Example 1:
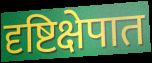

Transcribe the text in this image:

दृष्टिक्षेपात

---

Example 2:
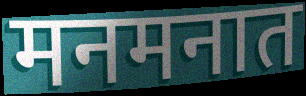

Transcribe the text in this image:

मनमनात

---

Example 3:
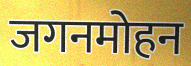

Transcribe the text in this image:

जगनमोहन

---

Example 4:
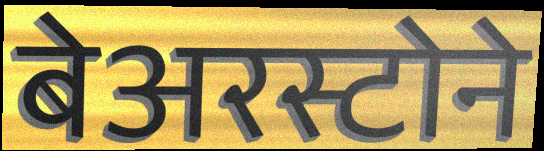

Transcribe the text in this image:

बेअरस्टोने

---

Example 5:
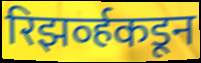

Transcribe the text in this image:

रिझर्व्हकडून